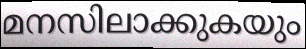
മനസിലാക്കുകയും